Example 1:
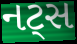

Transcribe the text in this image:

નટ્સ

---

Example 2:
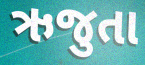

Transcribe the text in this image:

ઋજુતા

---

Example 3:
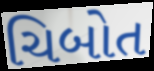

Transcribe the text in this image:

ચિબોત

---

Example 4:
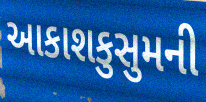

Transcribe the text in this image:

આકાશકુસુમની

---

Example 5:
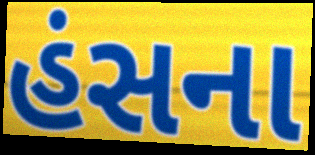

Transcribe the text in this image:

હંસના